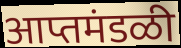
आप्तमंडळी